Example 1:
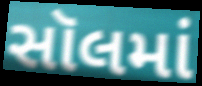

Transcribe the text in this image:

સૉલમાં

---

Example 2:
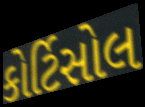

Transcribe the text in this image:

કોર્ટિસોલ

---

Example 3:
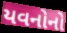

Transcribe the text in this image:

યવનોનો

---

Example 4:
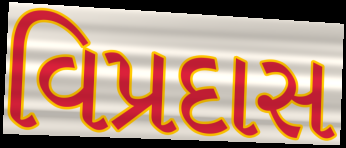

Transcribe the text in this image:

વિપ્રદાસ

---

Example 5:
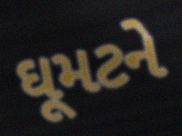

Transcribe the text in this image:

ઘૂમટને